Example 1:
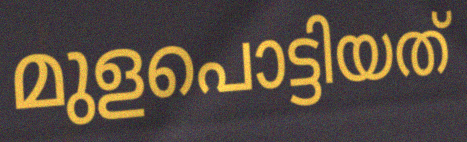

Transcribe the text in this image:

മുളപൊട്ടിയത്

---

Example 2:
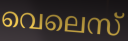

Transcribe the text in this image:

വെലെസ്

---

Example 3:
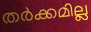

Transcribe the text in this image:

തർക്കമില്ല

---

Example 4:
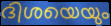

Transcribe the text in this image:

ദിശയെയും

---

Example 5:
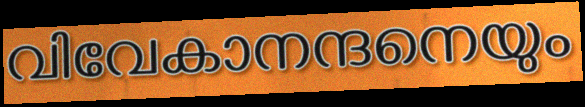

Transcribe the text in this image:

വിവേകാനന്ദനെയും